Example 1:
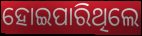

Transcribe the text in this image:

ହୋଇପାରିଥିଲେ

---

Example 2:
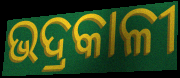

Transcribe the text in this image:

ଭଦ୍ରକାଳୀ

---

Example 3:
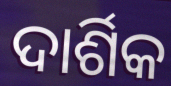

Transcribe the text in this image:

ଦାର୍ଶିକ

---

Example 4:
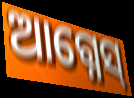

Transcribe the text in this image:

ଆଗ୍ନେସ୍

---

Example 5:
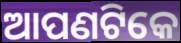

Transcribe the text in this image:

ଆପଣଟିକେ